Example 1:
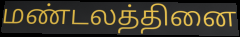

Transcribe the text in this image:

மண்டலத்தினை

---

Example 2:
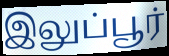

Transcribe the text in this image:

இலுப்பூர்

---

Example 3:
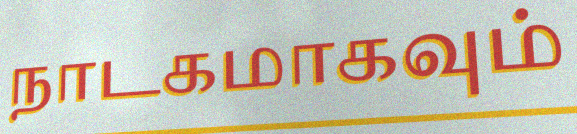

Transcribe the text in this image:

நாடகமாகவும்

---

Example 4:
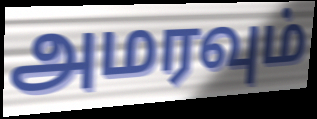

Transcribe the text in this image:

அமரவும்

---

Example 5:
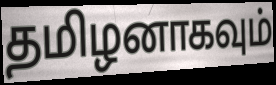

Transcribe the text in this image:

தமிழனாகவும்